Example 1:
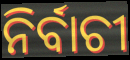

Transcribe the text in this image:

ନିର୍ବାଚୀ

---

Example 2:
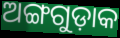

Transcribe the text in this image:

ଅଙ୍ଗଗୁଡ଼ାକ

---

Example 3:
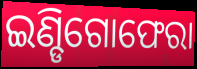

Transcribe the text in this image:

ଇଣ୍ଡିଗୋଫେରା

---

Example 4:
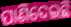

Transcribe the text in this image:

ପାଣିଦେଇଛି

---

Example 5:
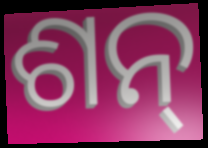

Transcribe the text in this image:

ଶନ୍